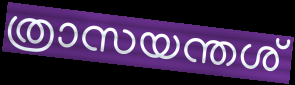
ത്രാസയന്തശ്